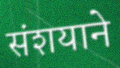
संशयाने